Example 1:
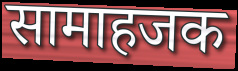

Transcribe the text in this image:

सामाहजक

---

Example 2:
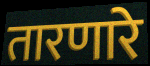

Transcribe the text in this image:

तारणारे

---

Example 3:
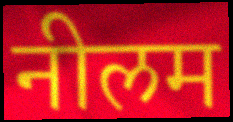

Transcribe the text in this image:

नीलम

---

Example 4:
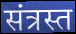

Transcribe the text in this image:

संत्रस्त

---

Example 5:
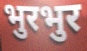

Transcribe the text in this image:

भुरभुर